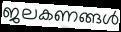
ജലകണങ്ങൾ